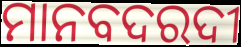
ମାନବଦରଦୀ